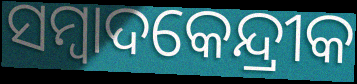
ସମ୍ୱାଦକେନ୍ଦ୍ରୀକ